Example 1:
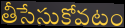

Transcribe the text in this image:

తీసేసుకోవటం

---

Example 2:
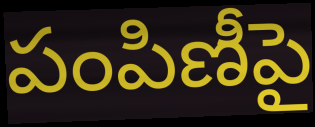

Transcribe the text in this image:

పంపిణీపై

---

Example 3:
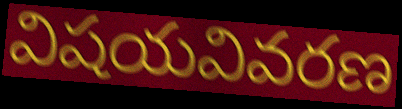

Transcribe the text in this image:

విషయవివరణ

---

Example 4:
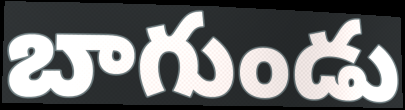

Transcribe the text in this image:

బాగుండు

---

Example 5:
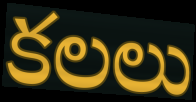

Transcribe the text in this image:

కలలు